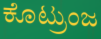
ಕೊಟ್ರುಂಜ